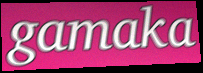
gamaka